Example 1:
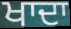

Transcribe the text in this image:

ਖਾਦਾ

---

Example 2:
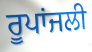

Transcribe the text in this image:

ਰੂਪਾਂਜਲੀ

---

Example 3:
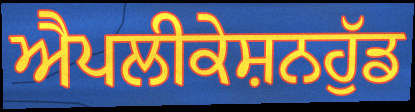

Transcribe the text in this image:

ਐਪਲੀਕੇਸ਼ਨਹੁੱਡ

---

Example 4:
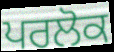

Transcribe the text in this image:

ਪਰਲੋਕ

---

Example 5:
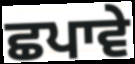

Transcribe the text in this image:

ਛਪਾਵੇ